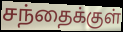
சந்தைக்குள்